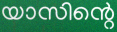
യാസിന്റെ